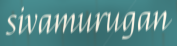
sivamurugan